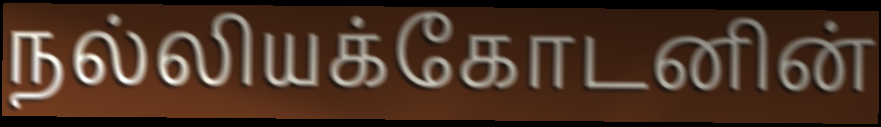
நல்லியக்கோடனின்